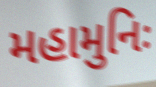
મહામુનિઃ